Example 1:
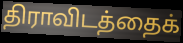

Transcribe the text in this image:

திராவிடத்தைக்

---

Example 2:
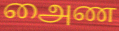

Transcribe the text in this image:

அைண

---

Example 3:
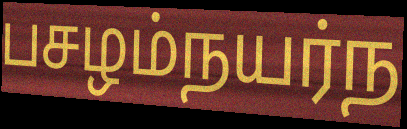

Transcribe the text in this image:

பசழம்நயர்ந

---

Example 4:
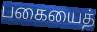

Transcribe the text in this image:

பகையைத்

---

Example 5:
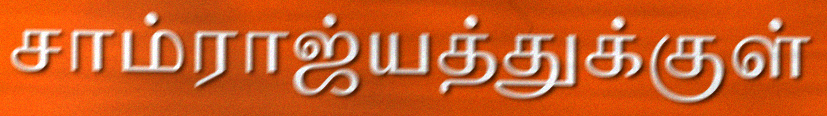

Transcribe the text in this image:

சாம்ராஜ்யத்துக்குள்